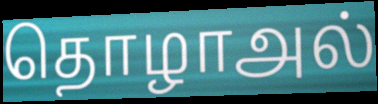
தொழாஅல்